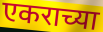
एकराच्या